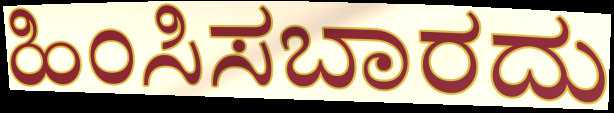
ಹಿಂಸಿಸಬಾರದು